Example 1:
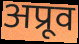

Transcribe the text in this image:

अप्रूव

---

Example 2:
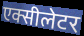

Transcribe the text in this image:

एक्सीलेटर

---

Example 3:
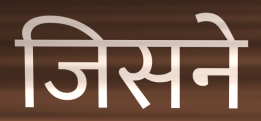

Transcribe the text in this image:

जिसने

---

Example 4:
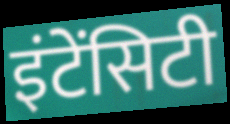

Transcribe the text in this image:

इंटेंसिटी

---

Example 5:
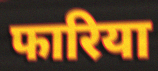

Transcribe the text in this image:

फारिया